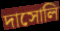
দাসোলি